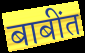
बाबींत